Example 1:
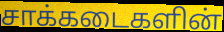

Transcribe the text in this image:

சாக்கடைகளின்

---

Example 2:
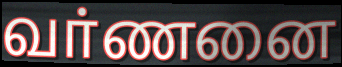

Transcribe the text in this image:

வர்ணனை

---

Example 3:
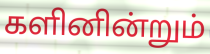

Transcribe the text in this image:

களினின்றும்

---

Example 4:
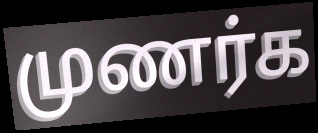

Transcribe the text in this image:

முணர்க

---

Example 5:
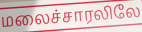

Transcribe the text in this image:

மலைச்சாரலிலே